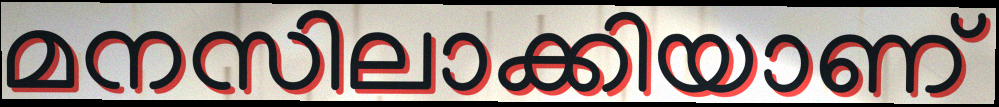
മനസിലാക്കിയാണ്